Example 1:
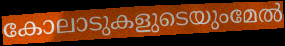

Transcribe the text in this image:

കോലാടുകളുടെയുംമേൽ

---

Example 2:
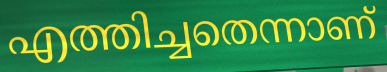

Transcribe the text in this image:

എത്തിച്ചതെന്നാണ്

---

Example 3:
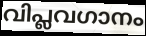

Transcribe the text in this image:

വിപ്ലവഗാനം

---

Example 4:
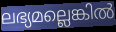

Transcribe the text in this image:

ലഭ്യമല്ലെങ്കിൽ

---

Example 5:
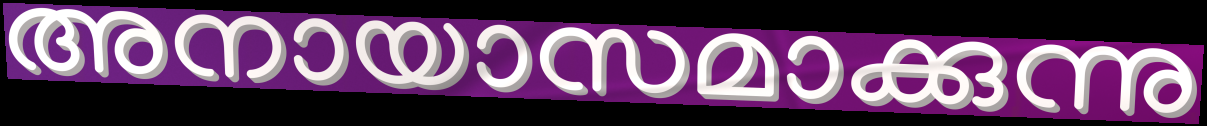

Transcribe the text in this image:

അനായാസമാക്കുന്നു